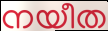
നയീത